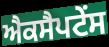
ਐਕਸੈਪਟੇਂਸ